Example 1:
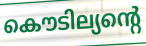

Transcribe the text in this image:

കൌടില്യന്റെ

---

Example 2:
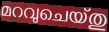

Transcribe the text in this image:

മറവുചെയ്തു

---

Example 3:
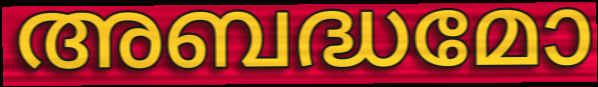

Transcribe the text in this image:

അബദ്ധമോ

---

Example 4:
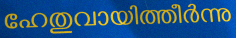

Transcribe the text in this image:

ഹേതുവായിത്തീർന്നു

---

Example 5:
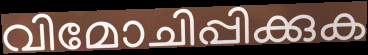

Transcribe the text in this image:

വിമോചിപ്പിക്കുക